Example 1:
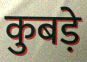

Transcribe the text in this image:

कुबड़े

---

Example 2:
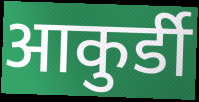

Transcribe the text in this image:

आकुर्डी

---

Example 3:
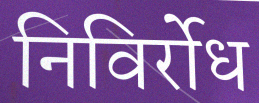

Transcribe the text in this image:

निविर्रोध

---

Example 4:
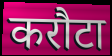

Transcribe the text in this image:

करौटा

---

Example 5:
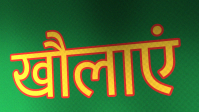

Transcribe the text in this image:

खौलाएं